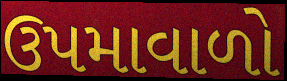
ઉપમાવાળો